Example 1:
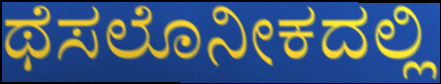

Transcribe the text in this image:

ಥೆಸಲೊನೀಕದಲ್ಲಿ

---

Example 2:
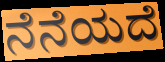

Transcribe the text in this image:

ನೆನೆಯದೆ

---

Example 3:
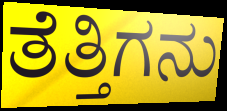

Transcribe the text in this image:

ತೆತ್ತಿಗನು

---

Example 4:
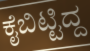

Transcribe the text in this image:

ಕೈಬಿಟ್ಟಿದ್ದ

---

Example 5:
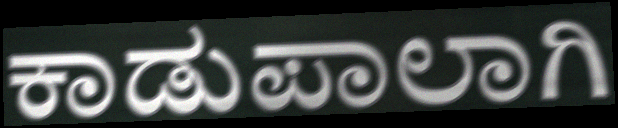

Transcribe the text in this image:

ಕಾಡುಪಾಲಾಗಿ